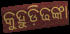
କୁହୁଡ଼ିଢଙ୍କା